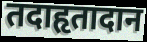
तदाहृतादान